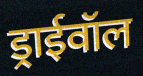
ड्राईवॉल